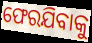
ଫେରଯିବାକୁ